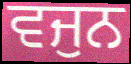
ਵਜੁਨ